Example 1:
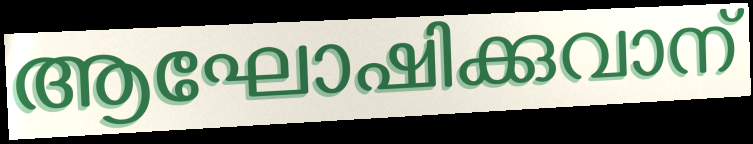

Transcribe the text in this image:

ആഘോഷിക്കുവാന്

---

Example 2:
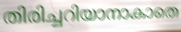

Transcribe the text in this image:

തിരിച്ചറിയാനാകാതെ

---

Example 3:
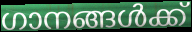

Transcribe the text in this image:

ഗാനങ്ങൾക്ക്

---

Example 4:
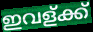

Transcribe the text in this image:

ഇവള്ക്ക്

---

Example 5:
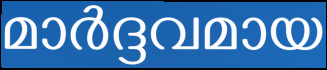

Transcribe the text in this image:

മാർദ്ദവമായ